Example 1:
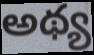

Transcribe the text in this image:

అథ్య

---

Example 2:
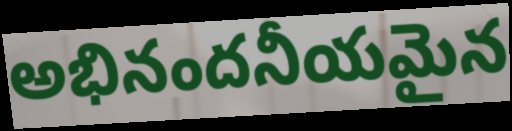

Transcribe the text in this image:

అభినందనీయమైన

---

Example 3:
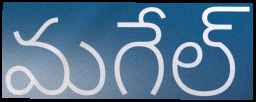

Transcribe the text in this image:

మగేల్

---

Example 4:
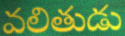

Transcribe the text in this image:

వలితుడు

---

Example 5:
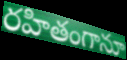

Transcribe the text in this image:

రహితంగానూ